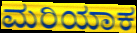
ಮರಿಯಾಕ